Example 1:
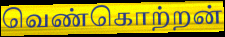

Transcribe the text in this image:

வெண்கொற்றன்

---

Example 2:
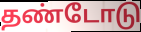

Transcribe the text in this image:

தண்டோடு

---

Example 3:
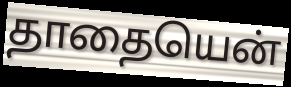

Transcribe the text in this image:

தாதையென்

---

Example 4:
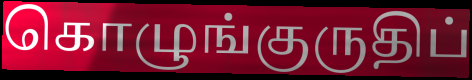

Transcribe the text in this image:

கொழுங்குருதிப்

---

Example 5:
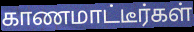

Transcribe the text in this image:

காணமாட்டீர்கள்